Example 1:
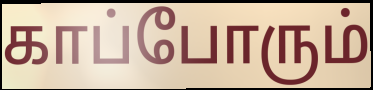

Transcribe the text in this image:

காப்போரும்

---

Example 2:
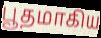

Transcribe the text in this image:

பூதமாகிய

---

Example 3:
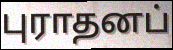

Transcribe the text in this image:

புராதனப்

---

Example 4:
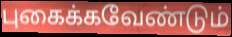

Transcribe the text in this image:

புகைக்கவேண்டும்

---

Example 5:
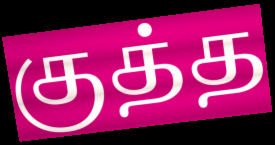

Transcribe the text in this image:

குத்த